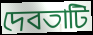
দেবতাটি